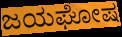
ಜಯಘೋಷ